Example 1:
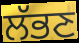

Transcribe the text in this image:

ਲੱਭਣ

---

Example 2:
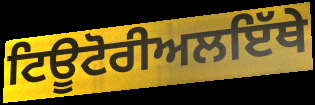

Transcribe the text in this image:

ਟਿਊਟੋਰੀਅਲਇੱਥੇ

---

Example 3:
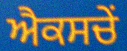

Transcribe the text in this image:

ਐਕਸਚੇਂ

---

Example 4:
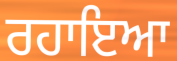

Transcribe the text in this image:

ਰਹਾਇਆ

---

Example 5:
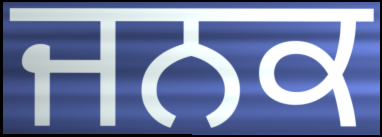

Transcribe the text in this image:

ਜਨਕ